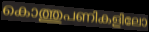
കൊത്തുപണികളിലോ